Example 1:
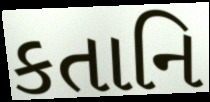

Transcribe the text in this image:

કતાનિ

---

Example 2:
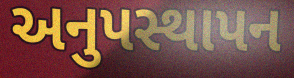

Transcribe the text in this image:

અનુપસ્થાપન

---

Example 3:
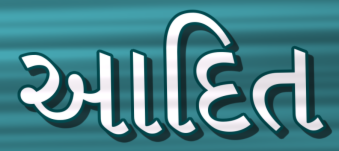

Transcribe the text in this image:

આદિત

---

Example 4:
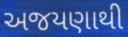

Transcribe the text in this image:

અજયણાથી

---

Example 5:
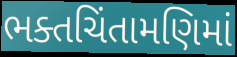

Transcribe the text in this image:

ભક્તચિંતામણિમાં